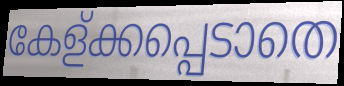
കേള്ക്കപ്പെടാതെ